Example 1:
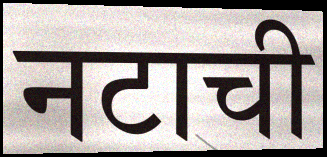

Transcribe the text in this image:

नटाची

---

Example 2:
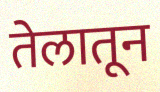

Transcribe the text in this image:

तेलातून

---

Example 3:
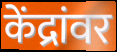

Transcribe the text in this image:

केंद्रांवर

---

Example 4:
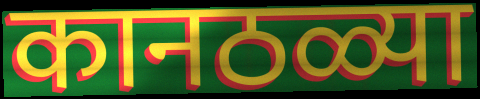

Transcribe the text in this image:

कानठळ्या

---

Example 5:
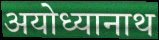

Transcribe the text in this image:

अयोध्यानाथ